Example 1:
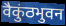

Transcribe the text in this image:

वैकुंठभुवन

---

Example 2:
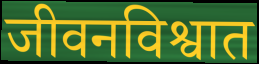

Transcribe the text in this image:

जीवनविश्वात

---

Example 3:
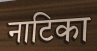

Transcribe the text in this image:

नाटिका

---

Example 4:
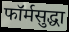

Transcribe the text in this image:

फॉर्मसुद्धा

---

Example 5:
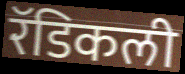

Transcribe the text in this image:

रॅडिकली